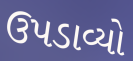
ઉપડાવ્યો